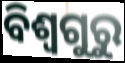
ବିଶ୍ୱଗୁରୁ